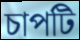
চাপটি